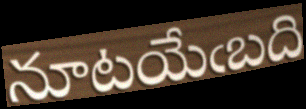
నూటయేఁబది